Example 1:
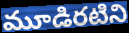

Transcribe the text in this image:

మూడిరటిని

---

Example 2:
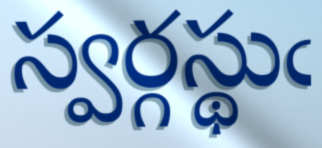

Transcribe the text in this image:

స్వర్గస్థుఁ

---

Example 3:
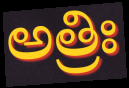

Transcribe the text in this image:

అత్రిః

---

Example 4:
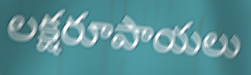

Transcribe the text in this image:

లక్షరూపాయలు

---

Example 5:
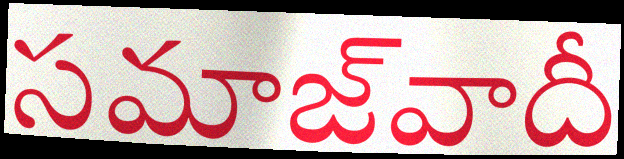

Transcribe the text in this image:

సమాజ్‌వాదీ